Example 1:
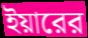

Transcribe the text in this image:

ইয়ারের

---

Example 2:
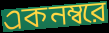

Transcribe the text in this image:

একনম্বরে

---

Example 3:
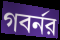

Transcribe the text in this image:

গবর্নর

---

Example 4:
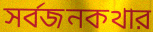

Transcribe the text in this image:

সর্বজনকথার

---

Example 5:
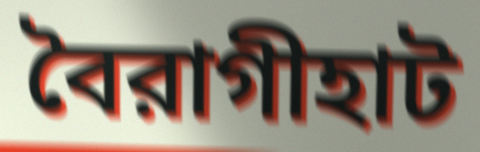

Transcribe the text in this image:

বৈরাগীহাট